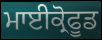
ਮਾਈਕ੍ਰੋਫੂਡ